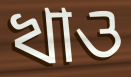
খাও